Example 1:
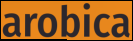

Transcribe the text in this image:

arobica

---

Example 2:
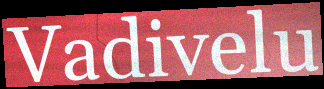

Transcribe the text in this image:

Vadivelu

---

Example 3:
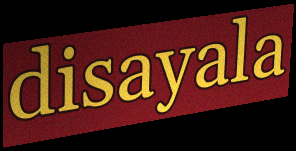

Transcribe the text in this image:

disayala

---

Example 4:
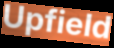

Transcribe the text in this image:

Upfield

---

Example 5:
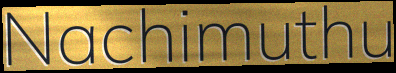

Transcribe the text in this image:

Nachimuthu